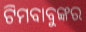
ଟିମବାବୁଙ୍କର